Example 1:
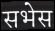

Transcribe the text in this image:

सभेस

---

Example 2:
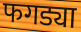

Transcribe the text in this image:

फगड्या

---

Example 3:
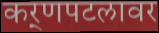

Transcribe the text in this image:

कर्णपटलावर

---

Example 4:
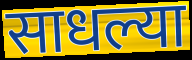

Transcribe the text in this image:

साधल्या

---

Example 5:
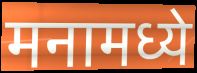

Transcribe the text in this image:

मनामध्ये